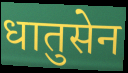
धातुसेन